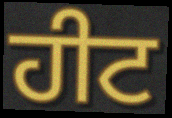
ਹੀਟ